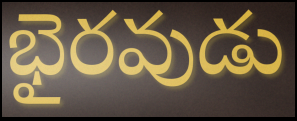
భైరవుడు